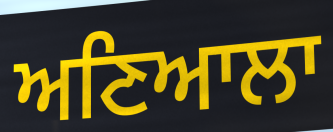
ਅਣਿਆਲਾ